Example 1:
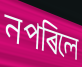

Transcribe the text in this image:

নপৰিলে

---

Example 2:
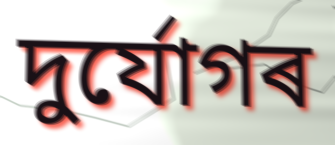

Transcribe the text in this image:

দুৰ্যোগৰ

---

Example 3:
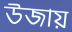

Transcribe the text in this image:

উজায়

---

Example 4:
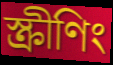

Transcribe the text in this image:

স্ক্ৰীণিং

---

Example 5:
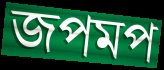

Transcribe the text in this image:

জপমপ